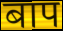
बाप